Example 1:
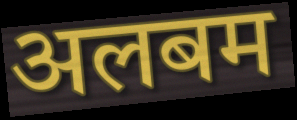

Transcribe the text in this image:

अलबम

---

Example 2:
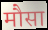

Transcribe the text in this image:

मौसा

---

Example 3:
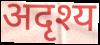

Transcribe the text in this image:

अदृश्य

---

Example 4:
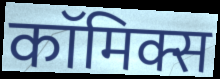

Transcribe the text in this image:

कॉमिक्स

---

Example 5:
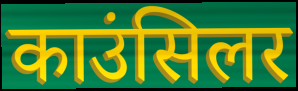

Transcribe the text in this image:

काउंसिलर